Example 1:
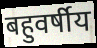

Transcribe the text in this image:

बहुवर्षीय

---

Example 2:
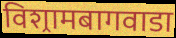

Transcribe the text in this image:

विश्रामबागवाडा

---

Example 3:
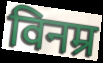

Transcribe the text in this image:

विनम्र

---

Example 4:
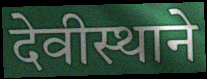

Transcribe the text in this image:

देवीस्थाने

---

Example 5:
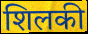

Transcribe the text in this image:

शिलकी